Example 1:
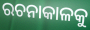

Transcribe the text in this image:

ରଚନାକାଳକୁ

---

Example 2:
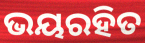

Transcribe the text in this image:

ଭୟରହିତ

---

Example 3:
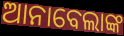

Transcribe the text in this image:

ଆନାବେଲାଙ୍କ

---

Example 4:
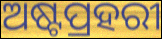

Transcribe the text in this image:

ଅଷ୍ଟପ୍ରହରୀ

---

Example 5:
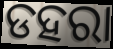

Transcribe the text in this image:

ଡହରା